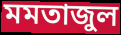
মমতাজুল